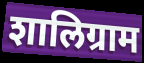
शालिग्राम